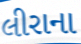
લીરાના